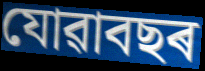
যোৱাবছৰ